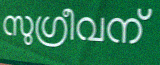
സുഗ്രീവന്